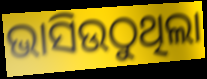
ଭାସିଉଠୁଥିଲା